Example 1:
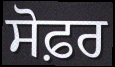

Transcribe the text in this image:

ਸੋਫ਼ਰ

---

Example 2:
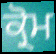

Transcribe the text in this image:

ਕ੍ਰੋਮ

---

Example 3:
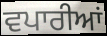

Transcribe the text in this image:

ਵਪਾਰੀਆਂ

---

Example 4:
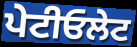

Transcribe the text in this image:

ਪੇਟੀਓਲੇਟ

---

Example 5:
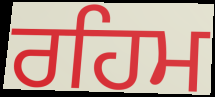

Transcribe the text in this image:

ਰਹਿਮ